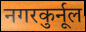
नगरकुर्नूल